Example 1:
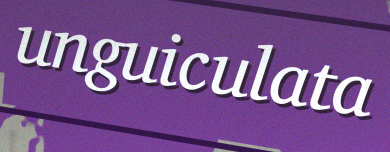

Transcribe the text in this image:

unguiculata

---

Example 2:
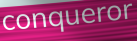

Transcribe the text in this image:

conqueror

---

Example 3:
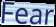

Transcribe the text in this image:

Fear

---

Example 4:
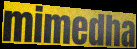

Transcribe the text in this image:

mimedha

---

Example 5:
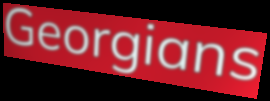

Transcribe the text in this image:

Georgians